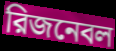
রিজনেবল